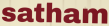
satham